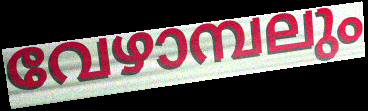
വേഴാമ്പലും